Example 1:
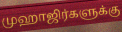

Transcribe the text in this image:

முஹாஜிர்களுக்கு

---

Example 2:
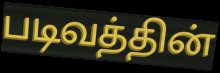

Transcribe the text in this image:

படிவத்தின்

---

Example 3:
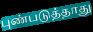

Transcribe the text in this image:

புண்படுத்தாது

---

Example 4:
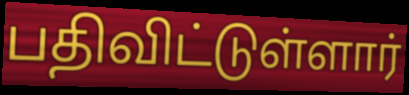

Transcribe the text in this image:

பதிவிட்டுள்ளார்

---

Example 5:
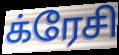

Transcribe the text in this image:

க்ரேசி